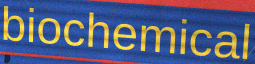
biochemical